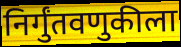
निर्गुंतवणुकीला